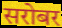
सरोबर